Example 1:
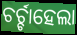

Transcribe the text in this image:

ଚର୍ଚ୍ଚାହେଲା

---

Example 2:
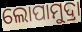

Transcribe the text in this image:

ଲୋପାମୁଦ୍ରା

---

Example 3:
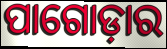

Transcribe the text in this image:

ପାଗୋଡ଼ାର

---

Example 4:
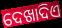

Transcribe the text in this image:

ଦେଖାଦିଏ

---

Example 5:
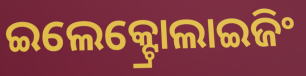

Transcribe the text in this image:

ଇଲେକ୍ଟ୍ରୋଲାଇଜିଂ